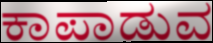
ಕಾಪಾಡುವ